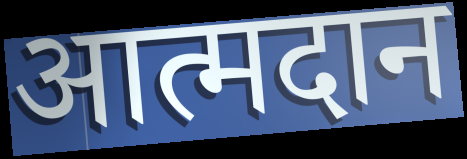
आत्मदान